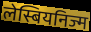
लेस्बियनिज्म